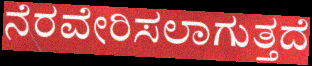
ನೆರವೇರಿಸಲಾಗುತ್ತದೆ